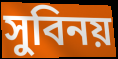
সুবিনয়